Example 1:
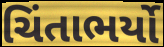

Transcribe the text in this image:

ચિંતાભર્યો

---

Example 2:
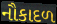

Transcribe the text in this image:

નૌકાદળ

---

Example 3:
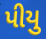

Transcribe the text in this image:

પીયુ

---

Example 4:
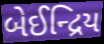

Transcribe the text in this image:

બેઈન્દ્રિય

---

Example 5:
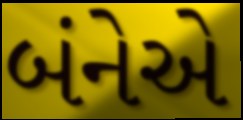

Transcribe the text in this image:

બંનેએ